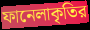
ফানেলাকৃতির